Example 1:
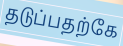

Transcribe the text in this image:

தடுப்பதற்கே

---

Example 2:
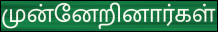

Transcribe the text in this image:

முன்னேறினார்கள்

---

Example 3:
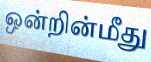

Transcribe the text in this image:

ஒன்றின்மீது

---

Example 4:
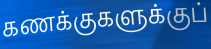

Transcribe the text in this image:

கணக்குகளுக்குப்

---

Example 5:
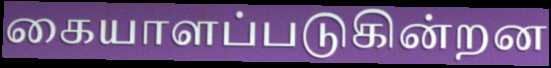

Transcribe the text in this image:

கையாளப்படுகின்றன